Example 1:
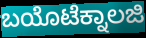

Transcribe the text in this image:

ಬಯೊಟೆಕ್ನಾಲಜಿ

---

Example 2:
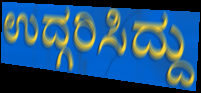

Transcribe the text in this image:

ಉದ್ಗರಿಸಿದ್ದು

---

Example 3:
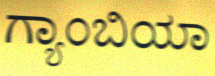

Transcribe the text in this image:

ಗ್ಯಾಂಬಿಯಾ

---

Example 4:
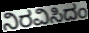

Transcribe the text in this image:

ನಿರವಿಸಿದಂ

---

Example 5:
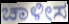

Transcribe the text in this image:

ಚಾಳೀಸ